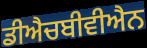
ਡੀਐਚਬੀਵੀਐਨ